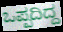
ಒಪ್ಪದಿದ್ದ